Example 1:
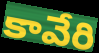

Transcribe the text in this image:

కావేరి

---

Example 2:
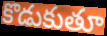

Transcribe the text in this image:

కొడుకుతూ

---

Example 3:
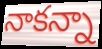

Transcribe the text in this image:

నాకన్నా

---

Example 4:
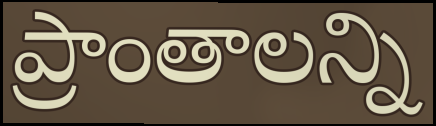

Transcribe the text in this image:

ప్రాంతాలన్ని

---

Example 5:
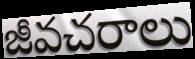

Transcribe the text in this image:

జీవచరాలు